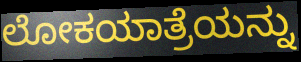
ಲೋಕಯಾತ್ರೆಯನ್ನು